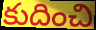
కుదించి